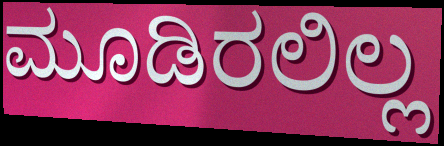
ಮೂಡಿರಲಿಲ್ಲ